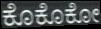
ಕೊಕೊಕೋ